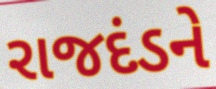
રાજદંડને